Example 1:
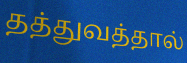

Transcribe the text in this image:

தத்துவத்தால்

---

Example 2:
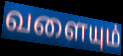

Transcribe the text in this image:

வளையும்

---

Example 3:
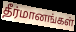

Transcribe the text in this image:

தீர்மானங்கள்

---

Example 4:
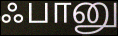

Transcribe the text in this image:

ஃபானு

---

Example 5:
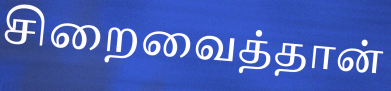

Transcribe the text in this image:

சிறைவைத்தான்